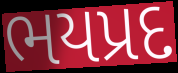
ભયપ્રદ